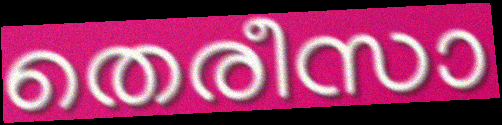
തെരീസാ